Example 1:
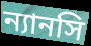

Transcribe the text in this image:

ন্যানসি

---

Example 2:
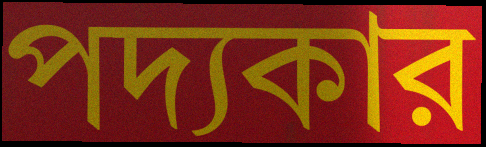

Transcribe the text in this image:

পদ্যকার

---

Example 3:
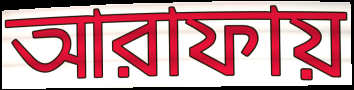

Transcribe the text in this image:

আরাফায়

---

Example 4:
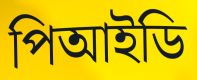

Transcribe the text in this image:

পিআইডি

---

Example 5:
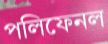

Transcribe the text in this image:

পলিফেনল